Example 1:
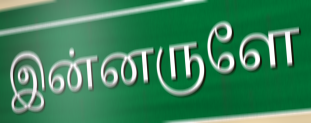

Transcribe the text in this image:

இன்னருளே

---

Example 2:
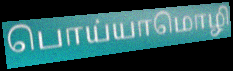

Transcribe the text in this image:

பொய்யாமொழி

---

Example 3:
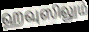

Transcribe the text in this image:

ஹவுஸிலும்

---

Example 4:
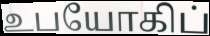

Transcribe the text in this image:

உபயோகிப்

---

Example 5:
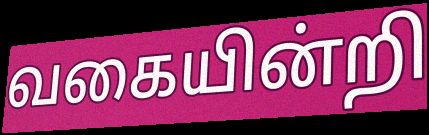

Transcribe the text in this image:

வகையின்றி